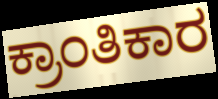
ಕ್ರಾಂತಿಕಾರ